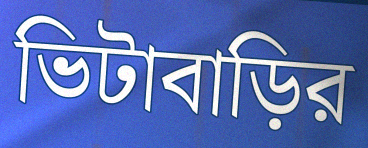
ভিটাবাড়ির